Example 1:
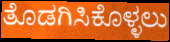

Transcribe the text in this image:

ತೊಡಗಿಸಿಕೊಳ್ಳಲು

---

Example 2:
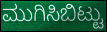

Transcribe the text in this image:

ಮುಗಿಸಿಬಿಟ್ಟು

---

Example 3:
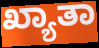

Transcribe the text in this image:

ಖ್ಯಾತಾ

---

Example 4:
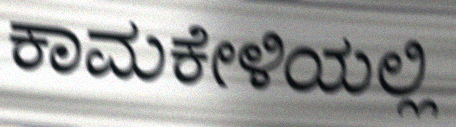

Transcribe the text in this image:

ಕಾಮಕೇಳಿಯಲ್ಲಿ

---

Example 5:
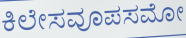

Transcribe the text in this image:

ಕಿಲೇಸವೂಪಸಮೋ